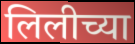
लिलीच्या